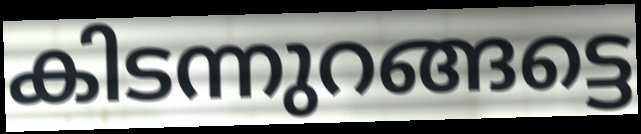
കിടന്നുറങ്ങട്ടെ